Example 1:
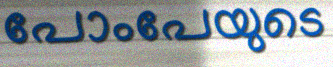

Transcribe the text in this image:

പോംപേയുടെ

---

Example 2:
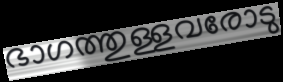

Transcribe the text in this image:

ഭാഗത്തുള്ളവരോടു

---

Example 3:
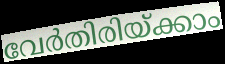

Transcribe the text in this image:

വേർതിരിയ്ക്കാം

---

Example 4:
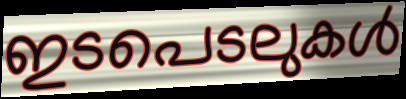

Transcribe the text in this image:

ഇടപെടലുകൾ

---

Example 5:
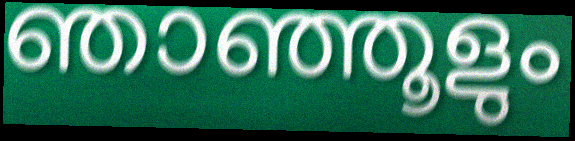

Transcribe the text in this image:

ഞാഞ്ഞൂളും